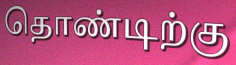
தொண்டிற்கு